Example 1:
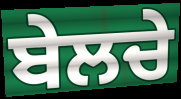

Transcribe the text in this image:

ਬੇਲਚੇ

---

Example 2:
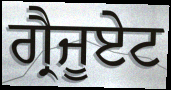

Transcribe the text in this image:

ਗ੍ਰੈਜੂਏਟ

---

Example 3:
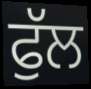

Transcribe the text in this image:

ਫੁੱਲ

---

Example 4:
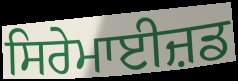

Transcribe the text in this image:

ਸਿਰੇਮਾਈਜ਼ਡ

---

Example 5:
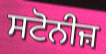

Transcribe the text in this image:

ਸਟੋਨੀਜ਼